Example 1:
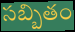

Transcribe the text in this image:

సబ్బితం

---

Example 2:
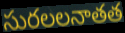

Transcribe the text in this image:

సురలలనాతత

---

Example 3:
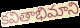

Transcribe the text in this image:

కవితాభిమాని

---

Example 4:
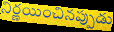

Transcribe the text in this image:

నిర్ణయించినప్పుడు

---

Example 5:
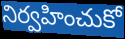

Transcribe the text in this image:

నిర్వహించుకో